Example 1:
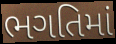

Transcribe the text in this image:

ભગતિમાં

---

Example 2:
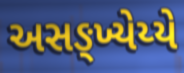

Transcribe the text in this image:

અસઙ્ખ્યેય્યે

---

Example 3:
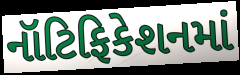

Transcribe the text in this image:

નૉટિફિકેશનમાં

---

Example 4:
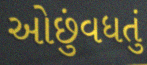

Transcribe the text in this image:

ઓછુંવધતું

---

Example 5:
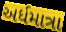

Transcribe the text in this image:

અર્ધમાત્રા